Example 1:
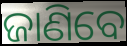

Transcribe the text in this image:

ଜାଣିବେ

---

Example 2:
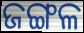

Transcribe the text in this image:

ଜଙ୍ଗଳ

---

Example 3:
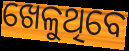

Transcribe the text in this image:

ଖେଳୁଥିବେ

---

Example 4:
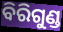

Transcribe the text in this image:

ବିରିଗୁଣ୍ଡ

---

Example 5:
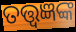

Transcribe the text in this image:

ତତ୍ତ୍ଵଜ୍ଞଙ୍କ